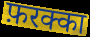
फ़रक्का